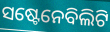
ସଷ୍ଟେନେବିଲିଟି